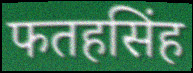
फतहसिंह